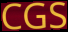
CGS